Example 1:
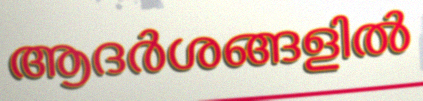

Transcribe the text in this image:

ആദർശങ്ങളിൽ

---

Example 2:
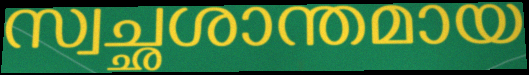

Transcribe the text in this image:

സ്വച്ഛശാന്തമായ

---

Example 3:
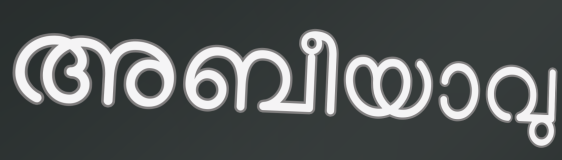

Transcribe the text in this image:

അബീയാവു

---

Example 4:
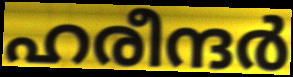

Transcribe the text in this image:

ഹരീന്ദർ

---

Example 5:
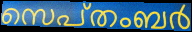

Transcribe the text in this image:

സെപ്‌തംബർ